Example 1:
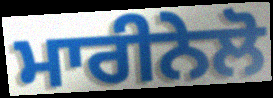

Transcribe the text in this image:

ਮਾਰੀਨੇਲੋ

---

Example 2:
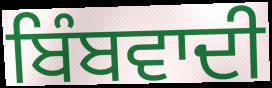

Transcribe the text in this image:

ਬਿੰਬਵਾਦੀ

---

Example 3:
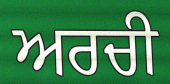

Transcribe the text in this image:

ਅਰਚੀ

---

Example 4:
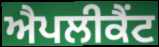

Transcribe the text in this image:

ਐਪਲੀਕੈਂਟ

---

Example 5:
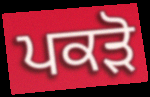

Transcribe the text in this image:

ਪਕੜੋ